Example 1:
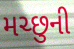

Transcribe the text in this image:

મચ્છુની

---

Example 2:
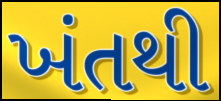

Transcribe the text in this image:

ખંતથી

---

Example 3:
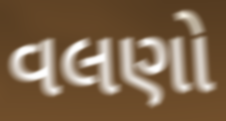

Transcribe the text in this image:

વલણો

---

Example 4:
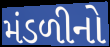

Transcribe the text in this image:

મંડળીનો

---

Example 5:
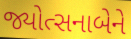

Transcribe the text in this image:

જ્યોત્સનાબેને